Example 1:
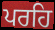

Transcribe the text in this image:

ਪਰਹਿ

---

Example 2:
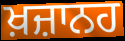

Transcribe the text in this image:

ਖ਼ਜ਼ਾਨਹ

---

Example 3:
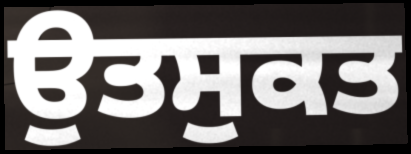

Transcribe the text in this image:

ਉਤਸੁਕਤ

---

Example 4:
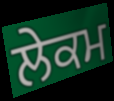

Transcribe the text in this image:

ਲੇਕਮ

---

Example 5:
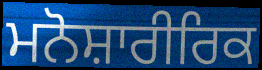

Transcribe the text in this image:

ਮਨੋਸ਼ਾਰੀਰਿਕ